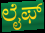
ಲೈಫ್